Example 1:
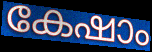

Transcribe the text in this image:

കേഷാം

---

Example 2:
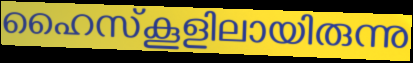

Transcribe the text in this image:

ഹൈസ്‌കൂളിലായിരുന്നു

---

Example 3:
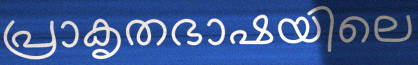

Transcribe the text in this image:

പ്രാകൃതഭാഷയിലെ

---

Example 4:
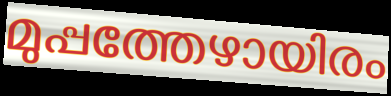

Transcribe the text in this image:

മുപ്പത്തേഴായിരം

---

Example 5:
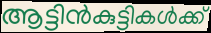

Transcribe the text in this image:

ആട്ടിൻകുട്ടികൾക്ക്